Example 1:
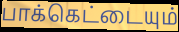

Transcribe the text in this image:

பாக்கெட்டையும்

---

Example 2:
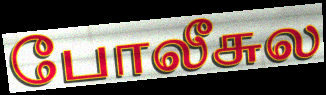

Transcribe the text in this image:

போலீசுல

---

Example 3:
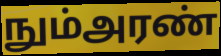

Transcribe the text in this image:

நும்அரண்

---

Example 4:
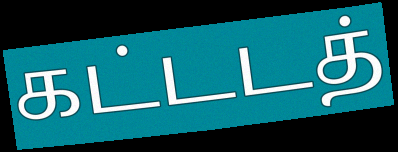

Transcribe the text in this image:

கட்டடத்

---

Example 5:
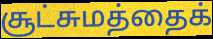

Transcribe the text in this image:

சூட்சுமத்தைக்